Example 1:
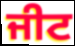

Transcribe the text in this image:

ਜੀਟ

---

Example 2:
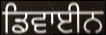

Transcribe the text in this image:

ਡਿਵਾਈਨ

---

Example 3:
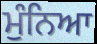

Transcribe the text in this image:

ਮੁੰਨਿਆ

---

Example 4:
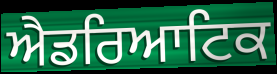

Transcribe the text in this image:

ਐਡਰਿਆਟਿਕ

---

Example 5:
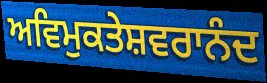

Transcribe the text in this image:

ਅਵਿਮੁਕਤੇਸ਼ਵਰਾਨੰਦ